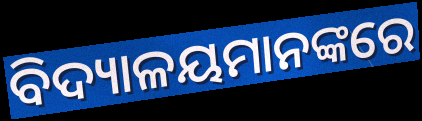
ବିଦ୍ୟାଳୟମାନଙ୍କରେ